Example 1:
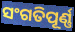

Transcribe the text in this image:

ସଂଗତିପୂର୍ଣ୍ଣ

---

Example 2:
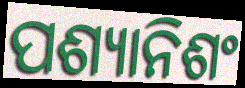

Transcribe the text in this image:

ପଶ୍ୟାନିଶଂ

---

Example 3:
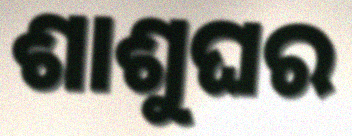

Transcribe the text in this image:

ଶାଶୁଘର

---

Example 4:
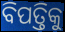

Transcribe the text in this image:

ବିପତ୍ତିକୁ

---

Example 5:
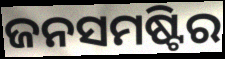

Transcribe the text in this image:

ଜନସମଷ୍ଟିର